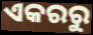
ଏକରରୁ